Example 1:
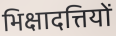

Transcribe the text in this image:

भिक्षादत्तियों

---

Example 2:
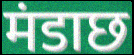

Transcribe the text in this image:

मंडाछ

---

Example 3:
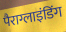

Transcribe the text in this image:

पैराग्लाइंडिंग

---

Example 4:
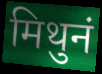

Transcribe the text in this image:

मिथुनं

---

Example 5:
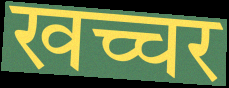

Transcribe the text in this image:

खच्‍चर